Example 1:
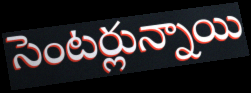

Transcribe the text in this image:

సెంటర్లున్నాయి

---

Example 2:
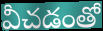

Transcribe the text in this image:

వీచడంతో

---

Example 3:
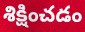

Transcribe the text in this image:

శిక్షించడం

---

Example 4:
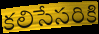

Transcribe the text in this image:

కలిసేసరికి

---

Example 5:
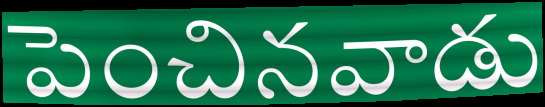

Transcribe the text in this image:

పెంచినవాడు